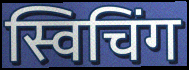
स्विचिंग